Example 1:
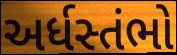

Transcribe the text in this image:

અર્ધસ્તંભો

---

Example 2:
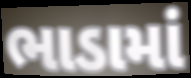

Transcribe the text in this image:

ભાડામાં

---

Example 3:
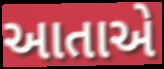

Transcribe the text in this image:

આતાએ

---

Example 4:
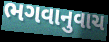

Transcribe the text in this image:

ભગવાનુવાચ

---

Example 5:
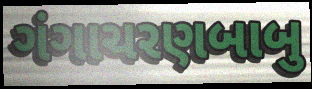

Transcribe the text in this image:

ગંગાચરણબાબુ